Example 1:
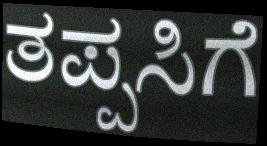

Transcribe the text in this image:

ತಪ್ಪಸಿಗೆ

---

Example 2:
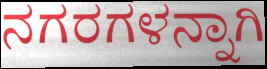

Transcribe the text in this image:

ನಗರಗಳನ್ನಾಗಿ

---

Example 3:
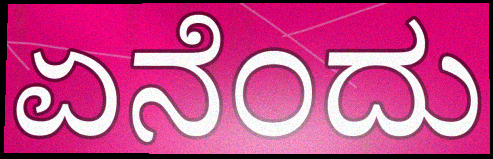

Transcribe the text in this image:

ಏನೆಂದು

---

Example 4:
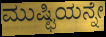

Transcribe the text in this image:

ಮುಷ್ಟಿಯನ್ನೇ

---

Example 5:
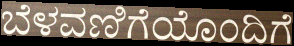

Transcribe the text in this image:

ಬೆಳವಣಿಗೆಯೊಂದಿಗೆ